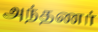
அந்தணர்